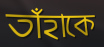
তাঁহাকে